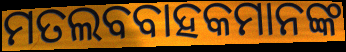
ମତଲବବାହକମାନଙ୍କ